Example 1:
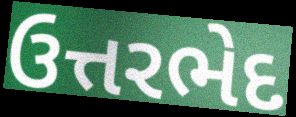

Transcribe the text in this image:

ઉત્તરભેદ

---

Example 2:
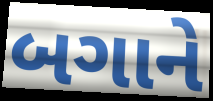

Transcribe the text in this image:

બગાને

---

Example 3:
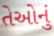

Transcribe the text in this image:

તેઓનું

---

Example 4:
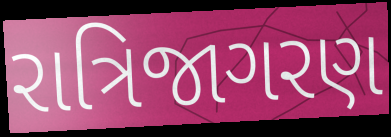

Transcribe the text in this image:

રાત્રિજાગરણ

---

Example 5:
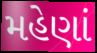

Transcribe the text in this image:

મહેણાં